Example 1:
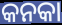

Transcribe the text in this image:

କନକା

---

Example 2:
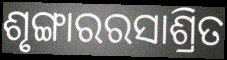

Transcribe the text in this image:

ଶୃଙ୍ଗାରରସାଶ୍ରିତ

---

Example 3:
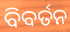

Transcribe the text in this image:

ବିବର୍ତନ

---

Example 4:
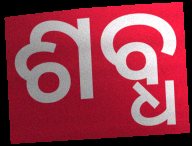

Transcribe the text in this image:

ଶବ୍ଧ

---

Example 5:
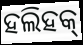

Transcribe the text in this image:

ହଲିହକ୍